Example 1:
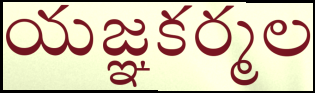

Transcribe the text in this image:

యజ్ఞకర్మల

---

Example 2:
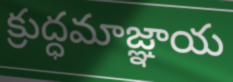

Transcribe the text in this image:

క్రుద్ధమాజ్ఞాయ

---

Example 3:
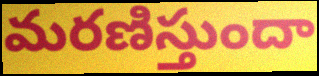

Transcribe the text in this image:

మరణిస్తుందా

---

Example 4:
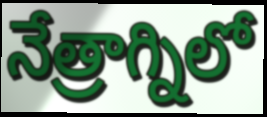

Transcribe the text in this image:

నేత్రాగ్నిలో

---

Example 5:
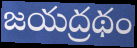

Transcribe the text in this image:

జయద్రథం